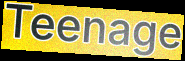
Teenage